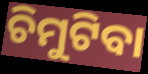
ଚିମୁଟିବା